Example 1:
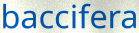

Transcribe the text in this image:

baccifera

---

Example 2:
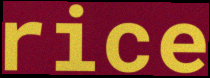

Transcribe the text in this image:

rice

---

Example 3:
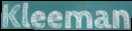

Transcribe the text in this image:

Kleeman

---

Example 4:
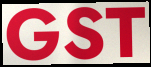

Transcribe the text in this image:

GST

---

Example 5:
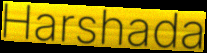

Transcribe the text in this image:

Harshada